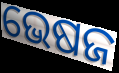
ଭେଷଜ